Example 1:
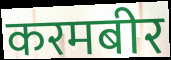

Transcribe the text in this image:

करमबीर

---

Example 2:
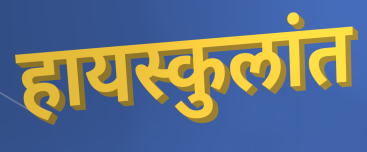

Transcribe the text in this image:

हायस्कुलांत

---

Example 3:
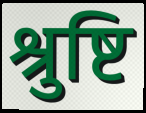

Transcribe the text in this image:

श्रुष्टि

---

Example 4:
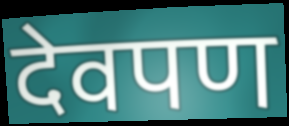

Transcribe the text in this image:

देवपण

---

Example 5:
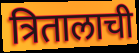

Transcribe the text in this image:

त्रितालाची